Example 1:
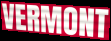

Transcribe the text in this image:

VERMONT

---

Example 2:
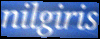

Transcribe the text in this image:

nilgiris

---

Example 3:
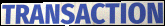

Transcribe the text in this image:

TRANSACTION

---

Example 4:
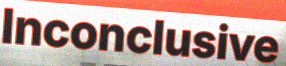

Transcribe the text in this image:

Inconclusive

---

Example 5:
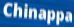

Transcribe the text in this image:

Chinappa